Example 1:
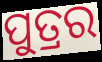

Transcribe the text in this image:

ପୁତ୍ରର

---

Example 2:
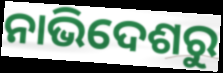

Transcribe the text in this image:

ନାଭିଦେଶରୁ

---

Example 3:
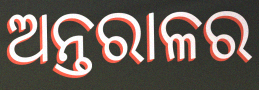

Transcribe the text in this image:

ଅନ୍ତରାଳର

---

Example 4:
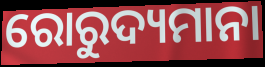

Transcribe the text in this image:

ରୋରୁଦ୍ୟମାନା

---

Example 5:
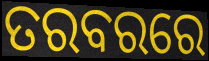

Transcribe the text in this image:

ତରବରରେ